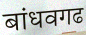
बांधवगढ